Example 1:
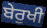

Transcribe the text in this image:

ਬੇਰੁਖੀ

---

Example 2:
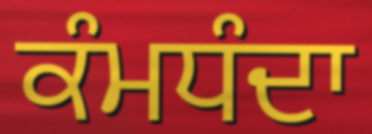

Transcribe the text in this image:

ਕੰਮਧੰਦਾ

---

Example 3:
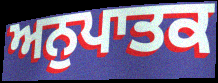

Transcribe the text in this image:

ਅਨੁਪਾਤਕ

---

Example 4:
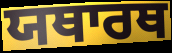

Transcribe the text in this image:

ਯਥਾਰਥ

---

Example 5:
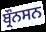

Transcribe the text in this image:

ਬ੍ਰੌਨਸਨ